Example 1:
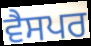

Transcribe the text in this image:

ਵੈਸਪਰ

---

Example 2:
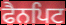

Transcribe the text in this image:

ਫੈਨਪਿਟ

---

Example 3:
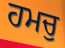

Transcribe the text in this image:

ਹਮਚੁ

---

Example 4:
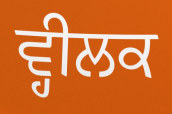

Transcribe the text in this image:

ਵ੍ਹੀਲਕ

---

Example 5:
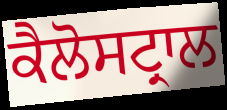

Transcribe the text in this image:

ਕੈਲੋਸਟ੍ਰਾਲ